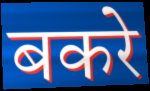
बकरे